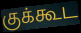
குக்கூட